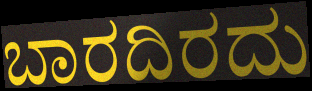
ಬಾರದಿರದು